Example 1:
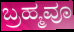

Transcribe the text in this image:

ಬ್ರಹ್ಮವೂ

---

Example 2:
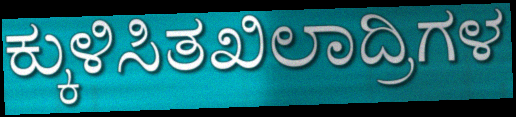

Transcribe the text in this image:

ಕ್ಕುಳಿಸಿತಖಿಲಾದ್ರಿಗಳ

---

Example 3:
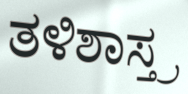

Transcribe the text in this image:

ತಳಿಶಾಸ್ತ್ರ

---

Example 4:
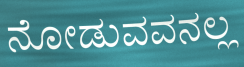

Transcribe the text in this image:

ನೋಡುವವನಲ್ಲ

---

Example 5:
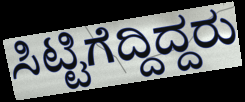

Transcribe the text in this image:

ಸಿಟ್ಟಿಗೆದ್ದಿದ್ದರು